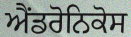
ਐਂਡਰੋਨਿਕੋਸ